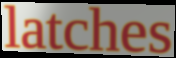
latches